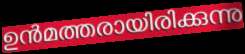
ഉൻമത്തരായിരിക്കുന്നു